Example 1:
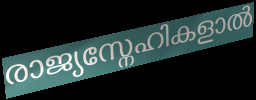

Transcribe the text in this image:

രാജ്യസ്നേഹികളാൽ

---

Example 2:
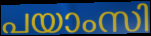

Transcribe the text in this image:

പയാംസി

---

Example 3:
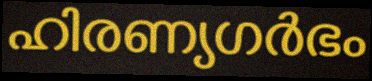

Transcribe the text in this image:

ഹിരണ്യഗർഭം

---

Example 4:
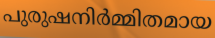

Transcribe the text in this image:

പുരുഷനിർമ്മിതമായ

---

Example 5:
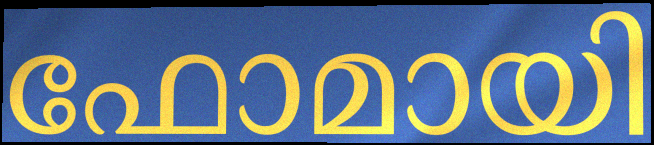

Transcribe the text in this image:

ഫോമായി